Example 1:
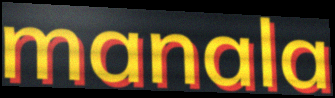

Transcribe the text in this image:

manala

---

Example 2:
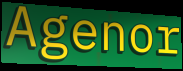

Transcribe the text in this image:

Agenor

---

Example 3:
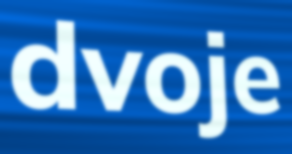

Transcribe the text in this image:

dvoje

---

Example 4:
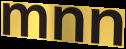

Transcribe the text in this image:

mnn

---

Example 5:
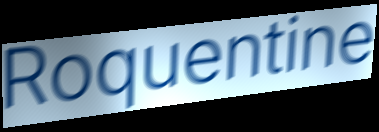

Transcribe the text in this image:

Roquentine